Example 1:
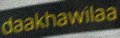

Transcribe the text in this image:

daakhawilaa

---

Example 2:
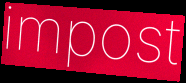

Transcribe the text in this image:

impost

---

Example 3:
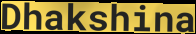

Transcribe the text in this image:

Dhakshina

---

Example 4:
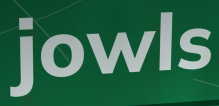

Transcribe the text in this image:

jowls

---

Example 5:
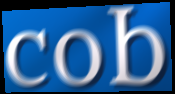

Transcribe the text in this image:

cob